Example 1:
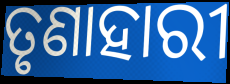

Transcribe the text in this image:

ତୃଣାହାରୀ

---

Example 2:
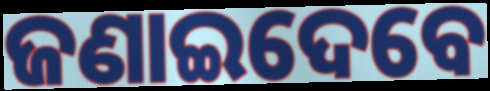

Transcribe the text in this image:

ଜଣାଇଦେବେ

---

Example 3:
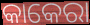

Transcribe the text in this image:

କାକେରା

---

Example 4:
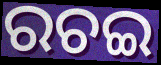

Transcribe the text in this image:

ରଚଇ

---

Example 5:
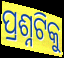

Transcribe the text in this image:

ପ୍ରଶ୍ନଟିକୁ